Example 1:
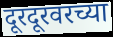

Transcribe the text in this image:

दूरदूरवरच्या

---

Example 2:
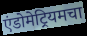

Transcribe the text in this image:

एंडोमेट्रियमचा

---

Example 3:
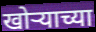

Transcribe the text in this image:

खोऱ्याच्या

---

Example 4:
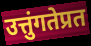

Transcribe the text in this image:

उत्तुंगतेप्रत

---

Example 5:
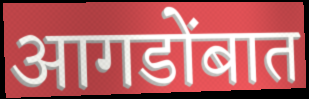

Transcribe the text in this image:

आगडोंबात